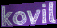
kovil